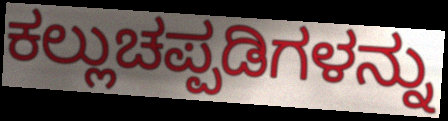
ಕಲ್ಲುಚಪ್ಪಡಿಗಳನ್ನು